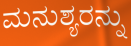
ಮನುಶ್ಯರನ್ನು